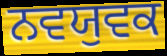
ਨਵਯੁਵਕ